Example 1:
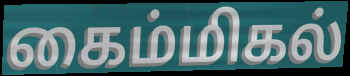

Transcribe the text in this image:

கைம்மிகல்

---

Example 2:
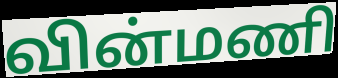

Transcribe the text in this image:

வின்மணி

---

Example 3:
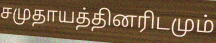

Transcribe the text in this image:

சமுதாயத்தினரிடமும்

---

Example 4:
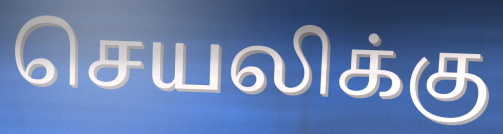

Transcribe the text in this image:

செயலிக்கு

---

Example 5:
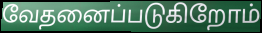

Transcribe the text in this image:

வேதனைப்படுகிறோம்